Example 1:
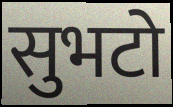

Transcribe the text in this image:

सुभटो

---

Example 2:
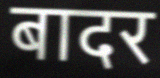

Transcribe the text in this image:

बादर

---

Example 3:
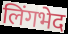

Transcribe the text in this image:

लिंगभेद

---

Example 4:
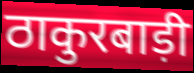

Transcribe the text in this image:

ठाकुरबाड़ी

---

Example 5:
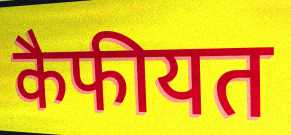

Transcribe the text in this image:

कैफीयत